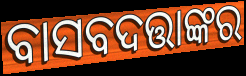
ବାସବଦତ୍ତାଙ୍କର